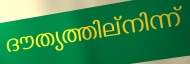
ദൗത്യത്തില്നിന്ന്